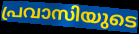
പ്രവാസിയുടെ